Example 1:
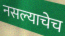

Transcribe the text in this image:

नसल्याचेच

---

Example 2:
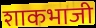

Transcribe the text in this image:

शाकभाजी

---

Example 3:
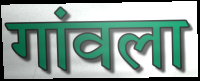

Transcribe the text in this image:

गांवला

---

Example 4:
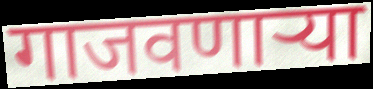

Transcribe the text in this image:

गाजवणाऱ्या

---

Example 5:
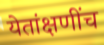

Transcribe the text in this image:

येतांक्षणींच